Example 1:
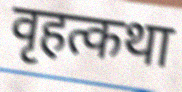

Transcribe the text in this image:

वृहत्कथा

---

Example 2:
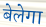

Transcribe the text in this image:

बेलेगा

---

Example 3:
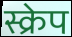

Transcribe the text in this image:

स्क्रेप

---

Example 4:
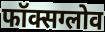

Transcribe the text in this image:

फॉक्सग्लोव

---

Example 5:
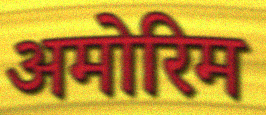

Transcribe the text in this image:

अमोरिम